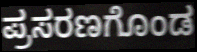
ಪ್ರಸರಣಗೊಂಡ